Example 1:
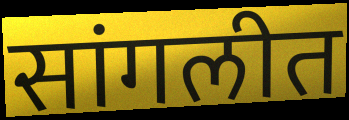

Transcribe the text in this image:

सांगलीत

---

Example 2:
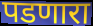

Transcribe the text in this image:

पडणारा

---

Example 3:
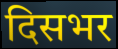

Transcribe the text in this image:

दिसभर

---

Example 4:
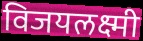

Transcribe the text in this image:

विजयलक्ष्मी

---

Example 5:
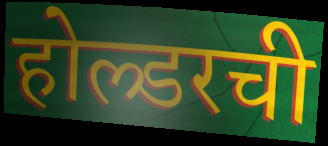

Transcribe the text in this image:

होल्डरची